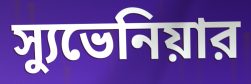
স্যুভেনিয়ার